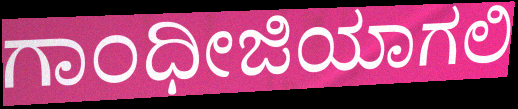
ಗಾಂಧೀಜಿಯಾಗಲಿ